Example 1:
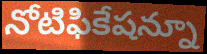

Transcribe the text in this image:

నోటిఫికేషన్నూ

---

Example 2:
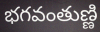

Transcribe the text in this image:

భగవంతుణ్ణి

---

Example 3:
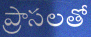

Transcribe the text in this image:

ప్రాసలతో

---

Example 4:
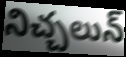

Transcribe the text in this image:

నిచ్చలున్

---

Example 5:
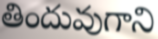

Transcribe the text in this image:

తిందువుగాని